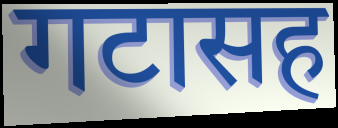
गटासह